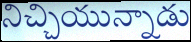
నిచ్చియున్నాడు